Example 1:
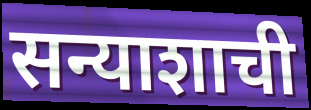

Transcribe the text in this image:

सन्याशाची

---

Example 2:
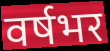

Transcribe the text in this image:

वर्षभर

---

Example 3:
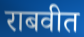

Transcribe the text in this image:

राबवीत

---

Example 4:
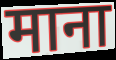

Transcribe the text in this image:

माना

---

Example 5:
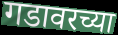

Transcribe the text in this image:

गडावरच्या